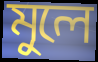
মুলে